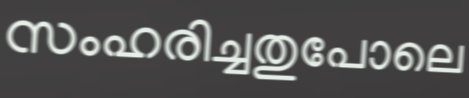
സംഹരിച്ചതുപോലെ